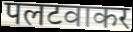
पलटवाकर